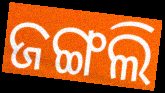
ଜଙ୍ଗଲି